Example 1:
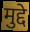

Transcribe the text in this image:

मुद्दे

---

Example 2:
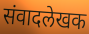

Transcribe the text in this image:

संवादलेखक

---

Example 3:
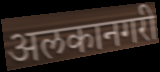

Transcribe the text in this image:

अलकानगरी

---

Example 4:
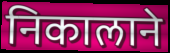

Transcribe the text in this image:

निकालाने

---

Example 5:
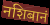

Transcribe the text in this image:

नशिबानं